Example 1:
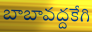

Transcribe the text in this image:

బాబావద్దకేగి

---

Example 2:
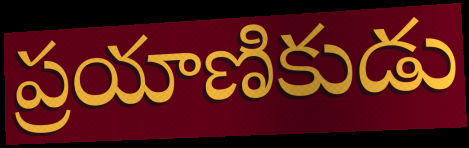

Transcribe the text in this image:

ప్రయాణికుడు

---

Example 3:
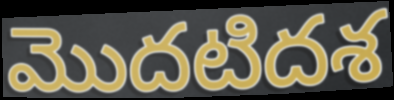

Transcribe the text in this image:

మొదటిదశ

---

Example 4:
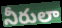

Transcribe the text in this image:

నీరులా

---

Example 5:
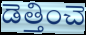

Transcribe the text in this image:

డెత్తించె